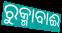
ରୁକ୍ମାବାଈ